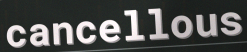
cancellous